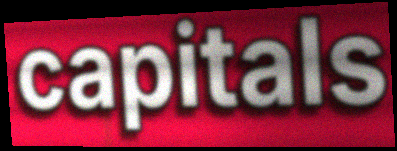
capitals